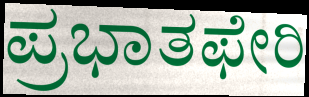
ಪ್ರಭಾತಫೇರಿ